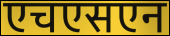
एचएसएन